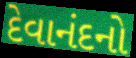
દેવાનંદનો